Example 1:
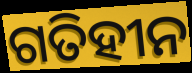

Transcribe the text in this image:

ଗତିହୀନ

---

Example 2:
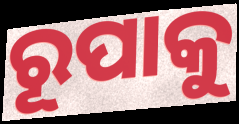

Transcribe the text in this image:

ରୂପାକୁ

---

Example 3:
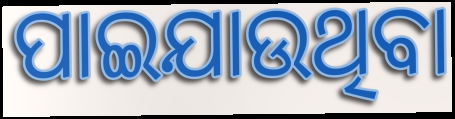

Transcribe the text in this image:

ପାଇଯାଉଥିବା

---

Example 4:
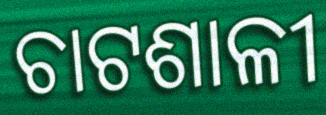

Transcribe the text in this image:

ଚାଟଶାଳୀ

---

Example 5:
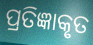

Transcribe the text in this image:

ପ୍ରତିଜ୍ଞାକୃତ